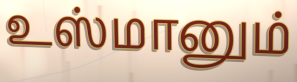
உஸ்மானும்